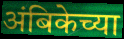
अंबिकेच्या